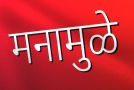
मनामुळे